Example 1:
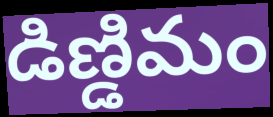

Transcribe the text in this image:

డిణ్డిమం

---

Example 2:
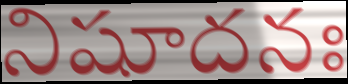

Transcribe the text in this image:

నిషూదనః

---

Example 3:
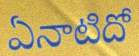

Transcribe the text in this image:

ఏనాటిదో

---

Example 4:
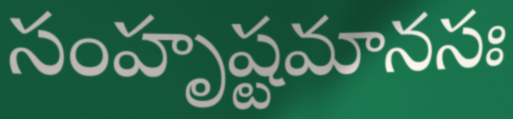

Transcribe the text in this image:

సంహృష్టమానసః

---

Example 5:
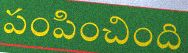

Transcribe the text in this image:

పంపించింది